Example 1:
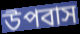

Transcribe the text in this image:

উপবাস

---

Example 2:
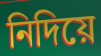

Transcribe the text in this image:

নিদিয়ে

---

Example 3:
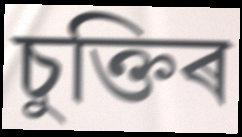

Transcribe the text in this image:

চুক্তিৰ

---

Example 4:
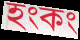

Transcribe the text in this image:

হংকং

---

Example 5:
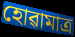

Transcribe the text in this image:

হোৱামাত্ৰ